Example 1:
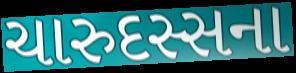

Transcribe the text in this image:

ચારુદસ્સના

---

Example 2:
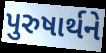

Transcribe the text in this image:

પુરુષાર્થને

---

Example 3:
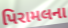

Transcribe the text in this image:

પિરામલના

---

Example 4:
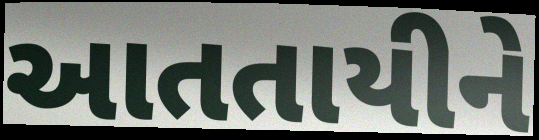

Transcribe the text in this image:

આતતાયીને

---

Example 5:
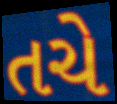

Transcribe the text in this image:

તચે